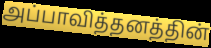
அப்பாவித்தனத்தின்